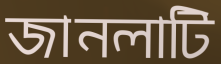
জানলাটি